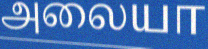
அலையா